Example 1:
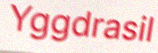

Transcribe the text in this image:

Yggdrasil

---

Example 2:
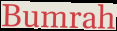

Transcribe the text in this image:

Bumrah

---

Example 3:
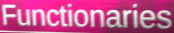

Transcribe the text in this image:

Functionaries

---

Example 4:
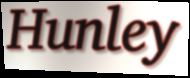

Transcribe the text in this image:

Hunley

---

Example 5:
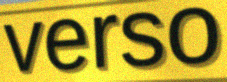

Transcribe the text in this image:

verso